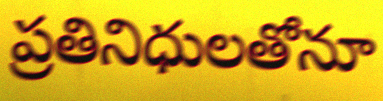
ప్రతినిధులతోనూ